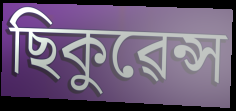
ছিকুৱেন্স